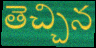
తెచ్చిన